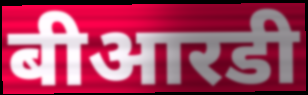
बीआरडी